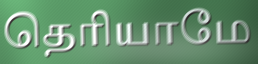
தெரியாமே